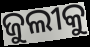
ଜୁଲୀକୁ